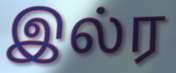
இல்ர